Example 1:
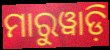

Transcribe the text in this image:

ମାରୁୱାଡ଼ି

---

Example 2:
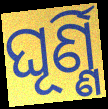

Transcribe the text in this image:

ଘୂର୍ଣ୍ଣି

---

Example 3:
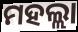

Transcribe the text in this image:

ମହଲ୍ଲା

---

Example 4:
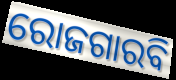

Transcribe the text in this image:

ରୋଜଗାରବି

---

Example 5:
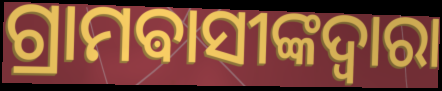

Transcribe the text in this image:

ଗ୍ରାମଵାସୀଙ୍କଦ୍ୱାରା